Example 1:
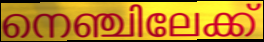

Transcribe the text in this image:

നെഞ്ചിലേക്ക്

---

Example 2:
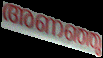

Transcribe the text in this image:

അണഞ്ഞു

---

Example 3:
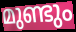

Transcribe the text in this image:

മുണ്ടും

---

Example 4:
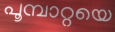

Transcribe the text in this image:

പൂമ്പാറ്റയെ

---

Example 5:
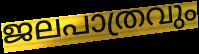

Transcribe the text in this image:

ജലപാത്രവും